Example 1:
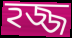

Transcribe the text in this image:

হজ্জ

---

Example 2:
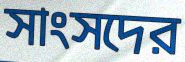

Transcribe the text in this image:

সাংসদের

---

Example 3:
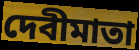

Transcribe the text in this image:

দেবীমাতা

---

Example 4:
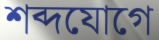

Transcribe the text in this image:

শব্দযোগে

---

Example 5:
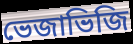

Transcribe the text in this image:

ভেজাভিজি